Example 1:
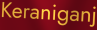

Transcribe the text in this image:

Keraniganj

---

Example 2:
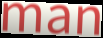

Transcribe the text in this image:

man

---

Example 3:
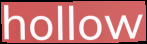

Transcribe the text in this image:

hollow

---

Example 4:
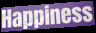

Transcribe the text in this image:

Happiness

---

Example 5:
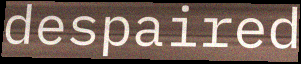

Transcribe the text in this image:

despaired